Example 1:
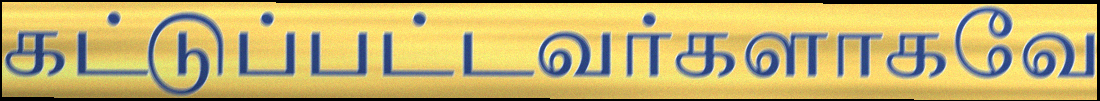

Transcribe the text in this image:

கட்டுப்பட்டவர்களாகவே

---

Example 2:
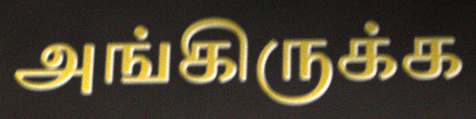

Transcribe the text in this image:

அங்கிருக்க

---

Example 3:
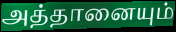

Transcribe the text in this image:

அத்தானையும்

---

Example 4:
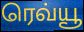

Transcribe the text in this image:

ரெவ்யூ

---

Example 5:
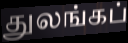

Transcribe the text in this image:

துலங்கப்